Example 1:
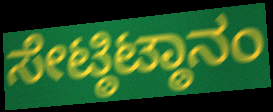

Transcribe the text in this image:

ಸೇಟ್ಠಿಟ್ಠಾನಂ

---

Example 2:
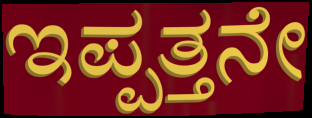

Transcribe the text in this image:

ಇಪ್ಪತ್ತನೇ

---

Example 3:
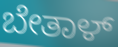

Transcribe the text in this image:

ಬೇತಾಳ್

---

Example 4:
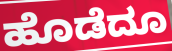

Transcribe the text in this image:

ಹೊಡೆದೂ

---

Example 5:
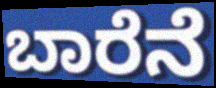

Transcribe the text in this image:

ಬಾರೆನೆ